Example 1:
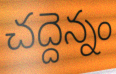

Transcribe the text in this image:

చద్దెన్నం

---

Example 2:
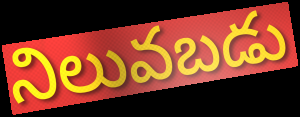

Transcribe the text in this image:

నిలువబడు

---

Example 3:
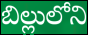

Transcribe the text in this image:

బిల్లులోని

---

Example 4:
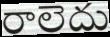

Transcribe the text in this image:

రాలెదు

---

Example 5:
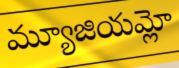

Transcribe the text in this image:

మ్యూజియమ్లో